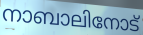
നാബാലിനോട്